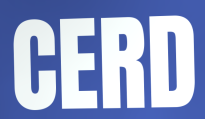
CERD